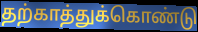
தற்காத்துக்கொண்டு